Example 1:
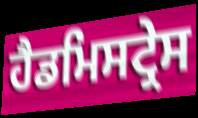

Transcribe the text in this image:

ਹੈਡਮਿਸਟ੍ਰੇਸ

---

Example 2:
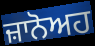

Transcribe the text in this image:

ਜ਼ਾਨੋਅਹ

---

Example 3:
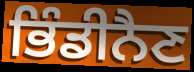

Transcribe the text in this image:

ਭਿੰਡੀਨੈਣ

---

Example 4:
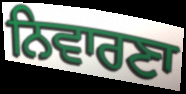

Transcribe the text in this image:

ਨਿਵਾਰਣਾ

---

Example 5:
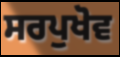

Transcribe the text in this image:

ਸਰਪੁਖੋਵ